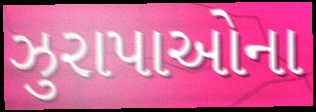
ઝુરાપાઓના